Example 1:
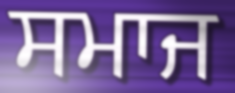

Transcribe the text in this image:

ਸਮਾਜ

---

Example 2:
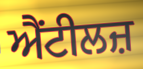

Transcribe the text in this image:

ਐਂਟੀਲਜ਼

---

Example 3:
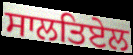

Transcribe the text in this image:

ਸਾਲਤਿਏਲ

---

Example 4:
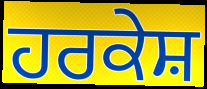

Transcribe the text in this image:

ਹਰਕੇਸ਼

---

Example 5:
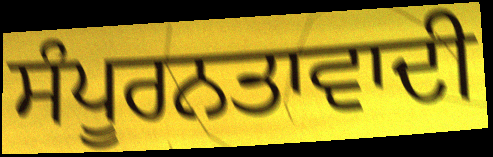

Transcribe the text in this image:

ਸੰਪੂਰਨਤਾਵਾਦੀ